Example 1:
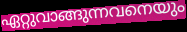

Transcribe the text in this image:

ഏറ്റുവാങ്ങുന്നവനെയും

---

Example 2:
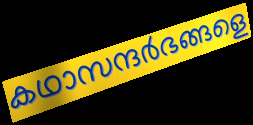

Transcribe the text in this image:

കഥാസന്ദർഭങ്ങളെ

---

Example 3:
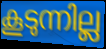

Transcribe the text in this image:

കൂടുന്നില്ല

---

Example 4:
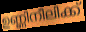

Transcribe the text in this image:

ഉണ്ണിനീലിക്ക്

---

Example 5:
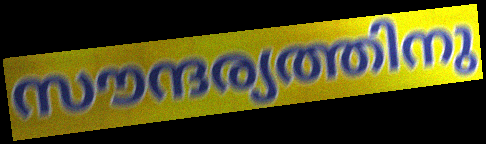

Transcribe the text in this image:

സൗന്ദര്യത്തിനു